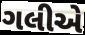
ગલીએ